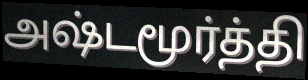
அஷ்டமூர்த்தி